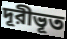
দূরীভূত